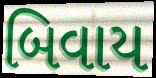
બિવાય